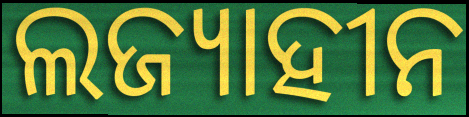
ଲଜ୍ଯାହୀନ